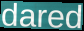
dared